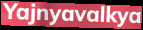
Yajnyavalkya